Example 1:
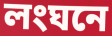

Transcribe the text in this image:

লংঘনে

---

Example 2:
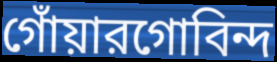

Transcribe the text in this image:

গোঁয়ারগোবিন্দ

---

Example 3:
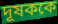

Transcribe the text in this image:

দূষককে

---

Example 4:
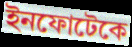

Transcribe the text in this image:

ইনফোটেকে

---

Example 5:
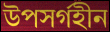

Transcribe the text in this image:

উপসর্গহীন